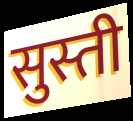
सुस्‍ती